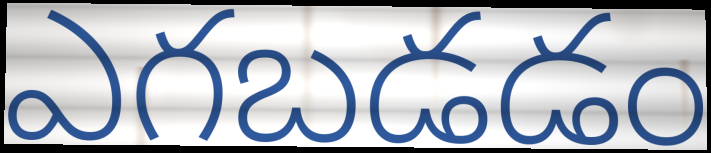
ఎగబడడం